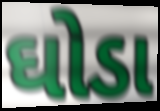
ઘોડા